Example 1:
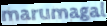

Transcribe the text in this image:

marumagal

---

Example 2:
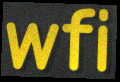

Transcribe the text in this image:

wfi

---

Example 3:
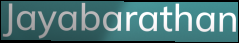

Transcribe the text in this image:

Jayabarathan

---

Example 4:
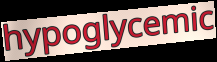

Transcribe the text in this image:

hypoglycemic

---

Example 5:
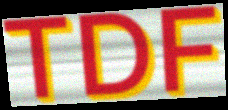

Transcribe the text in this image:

TDF